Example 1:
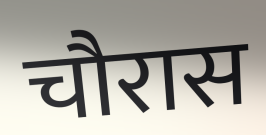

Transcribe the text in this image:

चौरास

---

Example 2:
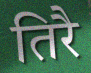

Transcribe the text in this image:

तिरै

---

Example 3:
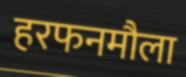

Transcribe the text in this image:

हरफनमौला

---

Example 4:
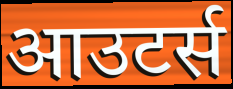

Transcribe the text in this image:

आउटर्स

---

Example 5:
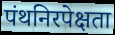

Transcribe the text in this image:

पंथनिरपेक्षता